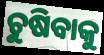
ଚୁଷିବାକୁ